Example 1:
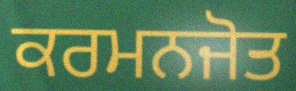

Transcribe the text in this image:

ਕਰਮਨਜੋਤ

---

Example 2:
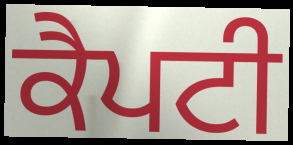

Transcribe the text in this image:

ਕੈਪਟੀ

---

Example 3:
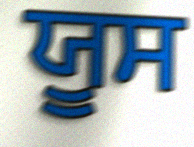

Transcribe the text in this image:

ਯੂਸ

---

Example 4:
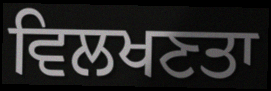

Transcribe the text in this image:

ਵਿਲਖਣਤਾ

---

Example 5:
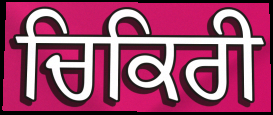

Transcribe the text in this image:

ਚਿਕਿਰੀ